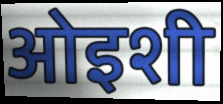
ओइशी